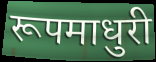
रूपमाधुरी